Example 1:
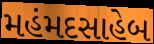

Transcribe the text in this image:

મહંમદસાહેબ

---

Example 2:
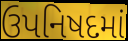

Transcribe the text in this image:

ઉપનિષદમાં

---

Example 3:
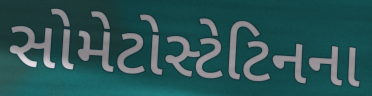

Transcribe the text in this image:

સોમેટોસ્ટેટિનના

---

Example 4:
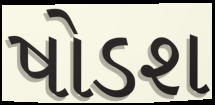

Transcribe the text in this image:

ષોડશ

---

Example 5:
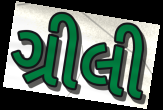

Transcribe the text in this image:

ગ્રીલી